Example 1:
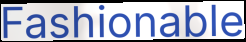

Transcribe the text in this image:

Fashionable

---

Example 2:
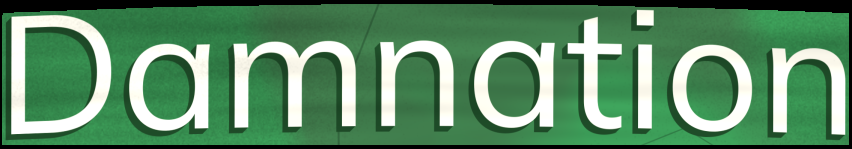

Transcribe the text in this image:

Damnation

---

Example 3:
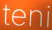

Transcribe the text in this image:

teni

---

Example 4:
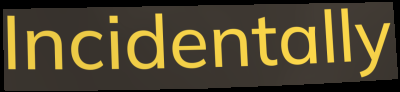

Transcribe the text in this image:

Incidentally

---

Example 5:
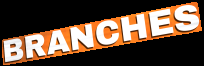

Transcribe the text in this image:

BRANCHES